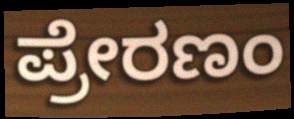
ಪ್ರೇರಣಂ